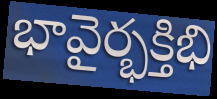
భావైర్భక్తిభి